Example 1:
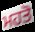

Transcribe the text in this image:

ਮਹਤੋ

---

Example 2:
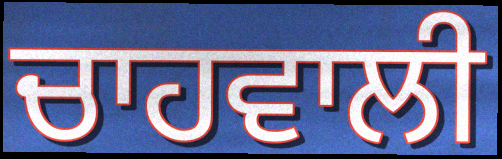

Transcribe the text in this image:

ਚਾਹਵਾਲੀ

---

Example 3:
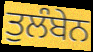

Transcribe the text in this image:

ਤੁਲੰਬੇਨ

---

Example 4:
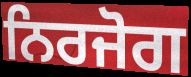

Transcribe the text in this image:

ਨਿਰਜੋਗ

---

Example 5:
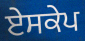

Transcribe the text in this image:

ਏਸਕੇਪ